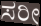
ಸರೀ